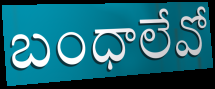
బంధాలేవో